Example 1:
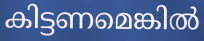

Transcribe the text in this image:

കിട്ടണമെങ്കിൽ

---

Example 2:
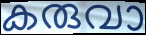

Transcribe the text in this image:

കരുവാ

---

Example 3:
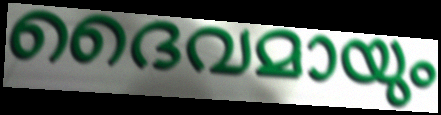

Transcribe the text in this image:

ദൈവമായും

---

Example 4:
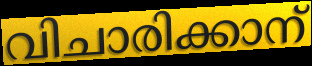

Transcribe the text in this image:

വിചാരിക്കാന്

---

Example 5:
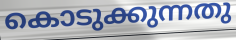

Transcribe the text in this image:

കൊടുക്കുന്നതു